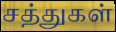
சத்துகள்